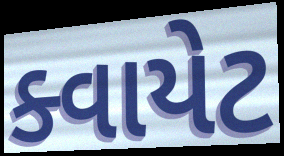
ક્વાયેટ